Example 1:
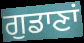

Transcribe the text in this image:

ਗੁਡਾਣਾਂ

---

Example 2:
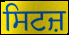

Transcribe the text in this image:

ਸਿਟਜ਼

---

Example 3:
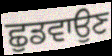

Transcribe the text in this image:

ਛੁਡਵਾਉਣ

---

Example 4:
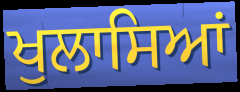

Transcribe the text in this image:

ਖੁਲਾਸਿਆਂ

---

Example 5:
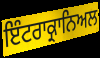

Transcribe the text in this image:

ਇੰਟਰਾਕ੍ਰਾਨਿਅਲ